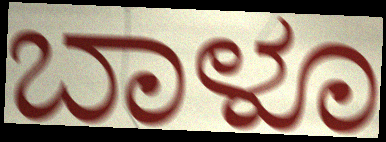
ಬಾಳೂ